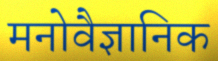
मनोवैज्ञानिक